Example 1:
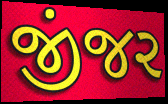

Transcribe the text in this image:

જીંજર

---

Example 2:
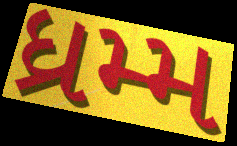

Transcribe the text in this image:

ધ્રમ્મ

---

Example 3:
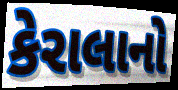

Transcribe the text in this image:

કેરાલાનો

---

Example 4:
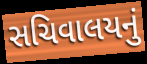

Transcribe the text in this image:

સચિવાલયનું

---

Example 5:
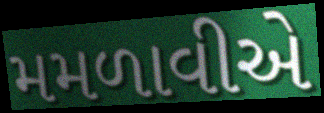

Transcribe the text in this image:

મમળાવીએ